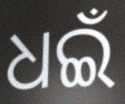
ଧଇଁ